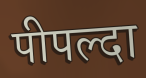
पीपल्दा